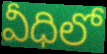
వీధిలో